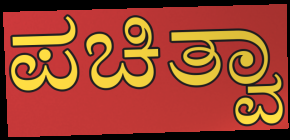
ಪಚಿತ್ವಾ